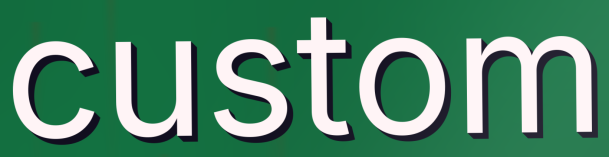
custom